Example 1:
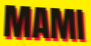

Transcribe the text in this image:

MAMI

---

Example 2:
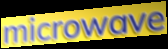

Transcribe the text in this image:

microwave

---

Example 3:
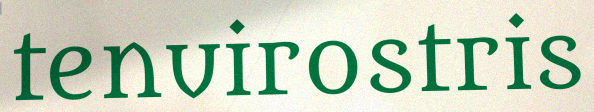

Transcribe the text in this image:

tenuirostris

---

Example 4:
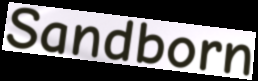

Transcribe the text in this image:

Sandborn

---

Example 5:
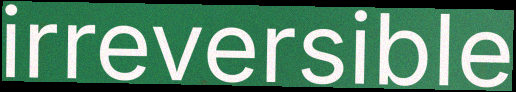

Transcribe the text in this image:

irreversible